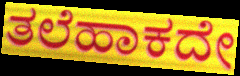
ತಲೆಹಾಕದೇ